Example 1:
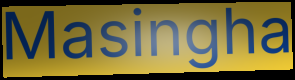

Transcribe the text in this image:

Masingha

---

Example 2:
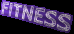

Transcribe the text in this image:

FITNESS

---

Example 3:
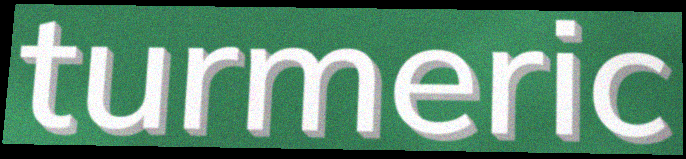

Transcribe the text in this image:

turmeric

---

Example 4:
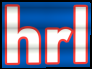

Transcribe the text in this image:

hrl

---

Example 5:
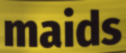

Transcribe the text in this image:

maids